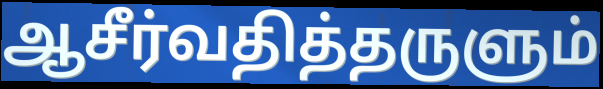
ஆசீர்வதித்தருளும்